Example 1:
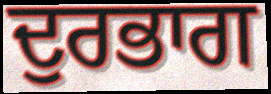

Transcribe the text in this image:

ਦੁਰਭਾਗ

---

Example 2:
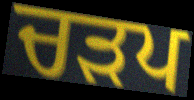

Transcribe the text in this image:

ਚੜਪ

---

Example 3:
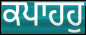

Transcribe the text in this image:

ਕਪਾਹਹੁ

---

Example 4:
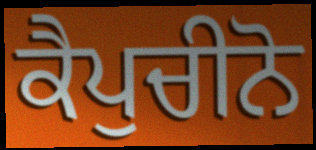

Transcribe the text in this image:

ਕੈਪੁਚੀਨੋ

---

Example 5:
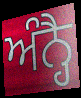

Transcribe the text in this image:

ਅੰਨ੍ਹੈ